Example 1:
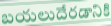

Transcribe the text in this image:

బయలుదేరడానికి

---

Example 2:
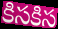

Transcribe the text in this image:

కిసకిస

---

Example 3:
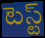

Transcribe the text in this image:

టెస్ట్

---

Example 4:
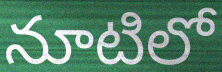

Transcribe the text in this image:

నూటిలో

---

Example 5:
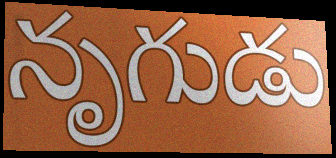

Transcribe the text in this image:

నృగుడు